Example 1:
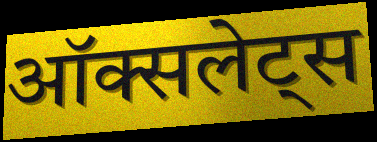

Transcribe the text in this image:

ऑक्सलेट्स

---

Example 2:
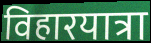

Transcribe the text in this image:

विहारयात्रा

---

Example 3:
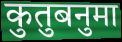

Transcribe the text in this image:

कुतुबनुमा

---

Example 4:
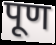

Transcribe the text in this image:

पूण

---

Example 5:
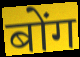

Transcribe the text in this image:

बोंग